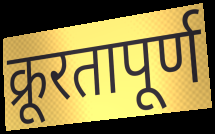
क्रूरतापूर्ण